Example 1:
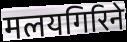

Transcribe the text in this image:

मलयगिरिने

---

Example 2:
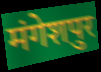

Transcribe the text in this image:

मंगेशपुर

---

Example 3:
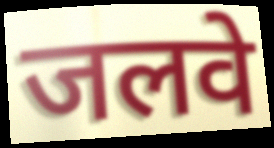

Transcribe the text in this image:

जलवे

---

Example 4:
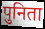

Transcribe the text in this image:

पुनिता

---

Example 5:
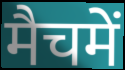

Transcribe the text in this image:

मैचमें